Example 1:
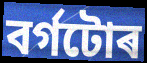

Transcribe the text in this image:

বৰ্গটোৰ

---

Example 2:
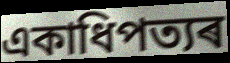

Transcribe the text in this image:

একাধিপত্যৰ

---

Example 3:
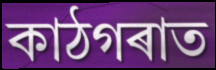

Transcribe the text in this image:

কাঠগৰাত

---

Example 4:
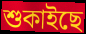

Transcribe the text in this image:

শুকাইছে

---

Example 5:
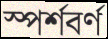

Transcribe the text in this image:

স্পৰ্শবৰ্ণ